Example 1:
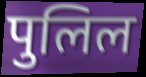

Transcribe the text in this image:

पुलिल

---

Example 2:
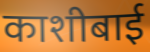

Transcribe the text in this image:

काशीबाई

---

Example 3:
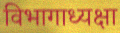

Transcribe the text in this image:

विभागाध्यक्षा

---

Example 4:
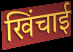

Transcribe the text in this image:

खिंचाई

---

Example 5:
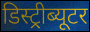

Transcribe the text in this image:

डिस्ट्रीब्यूटर